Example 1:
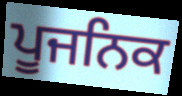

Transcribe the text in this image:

ਪੂਜਨਿਕ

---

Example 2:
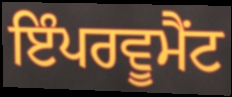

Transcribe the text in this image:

ਇੰਪਰਵੂਮੈਂਟ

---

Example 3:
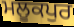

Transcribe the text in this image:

ਮਲੂਕਪੁਰ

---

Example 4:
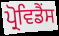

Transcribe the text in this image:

ਪ੍ਰੋਵਿਡੈਂਸ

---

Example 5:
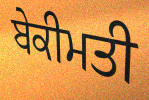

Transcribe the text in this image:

ਬੇਕੀਮਤੀ